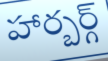
హార్బర్గ్